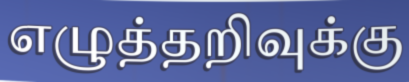
எழுத்தறிவுக்கு